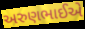
અરુણભાઈએ